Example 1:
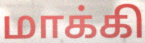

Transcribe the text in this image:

மாக்கி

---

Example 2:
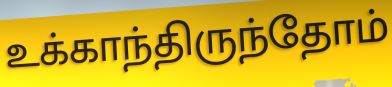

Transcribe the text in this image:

உக்காந்திருந்தோம்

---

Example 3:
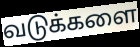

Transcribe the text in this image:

வடுக்களை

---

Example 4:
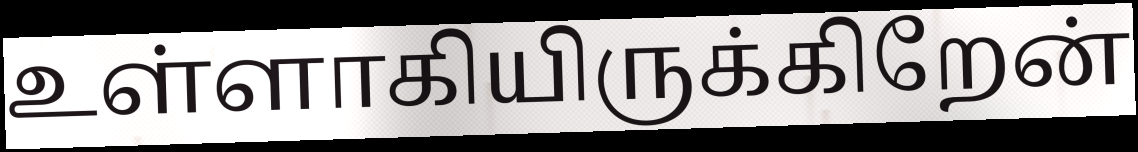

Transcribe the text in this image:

உள்ளாகியிருக்கிறேன்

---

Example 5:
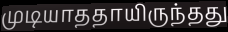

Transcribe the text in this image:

முடியாததாயிருந்தது